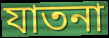
যাতনা